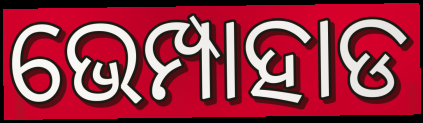
ଭେମ୍ପାହାଡ